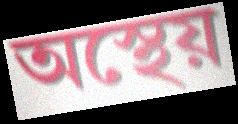
অস্থেয়